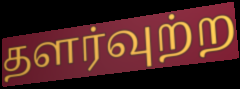
தளர்வுற்ற